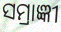
ସମ୍ରାଜ୍ଞୀ